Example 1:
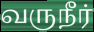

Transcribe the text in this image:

வருநீர்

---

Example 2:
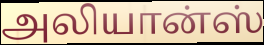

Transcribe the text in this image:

அலியான்ஸ்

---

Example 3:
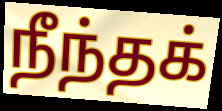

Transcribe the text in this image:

நீந்தக்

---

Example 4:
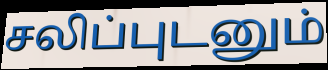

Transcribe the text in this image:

சலிப்புடனும்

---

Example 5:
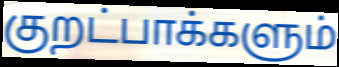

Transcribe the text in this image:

குறட்பாக்களும்